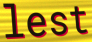
lest